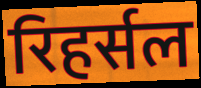
रिहर्सल